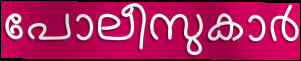
പോലീസുകാർ